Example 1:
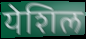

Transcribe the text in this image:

येशिल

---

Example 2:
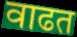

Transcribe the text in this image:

वाढत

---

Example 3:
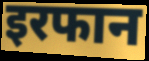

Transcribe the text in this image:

इरफान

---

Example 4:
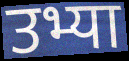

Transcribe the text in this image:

उभ्या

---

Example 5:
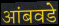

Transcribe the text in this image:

आंबवडे